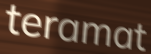
teramat